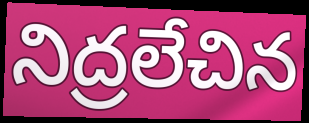
నిద్రలేచిన